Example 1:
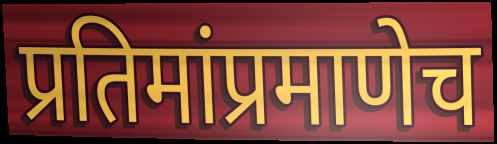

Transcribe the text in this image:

प्रतिमांप्रमाणेच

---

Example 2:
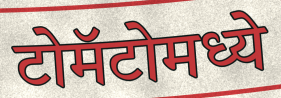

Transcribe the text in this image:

टोमॅटोमध्ये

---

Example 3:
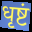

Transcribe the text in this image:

धृष्टं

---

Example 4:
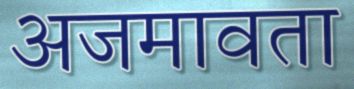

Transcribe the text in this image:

अजमावता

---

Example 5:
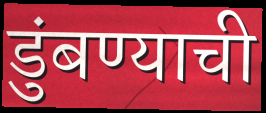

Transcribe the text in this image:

डुंबण्याची